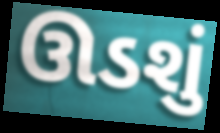
ઊડશું